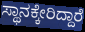
ಸ್ಥಾನಕ್ಕೇರಿದ್ದಾರೆ